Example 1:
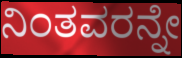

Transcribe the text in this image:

ನಿಂತವರನ್ನೇ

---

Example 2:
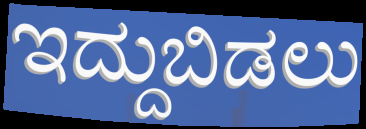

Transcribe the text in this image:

ಇದ್ದುಬಿಡಲು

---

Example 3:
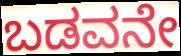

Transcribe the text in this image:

ಬಡವನೇ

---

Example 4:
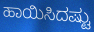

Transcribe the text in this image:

ಹಾಯಿಸಿದಷ್ಟು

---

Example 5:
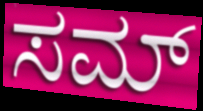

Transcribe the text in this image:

ಸಮ್